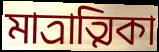
মাত্রাত্মিকা